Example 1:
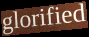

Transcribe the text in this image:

glorified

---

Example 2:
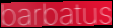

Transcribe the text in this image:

barbatus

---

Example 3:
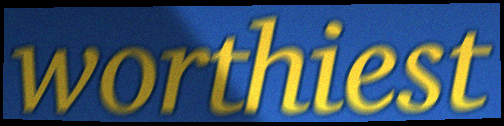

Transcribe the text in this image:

worthiest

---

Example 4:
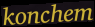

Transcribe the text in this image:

konchem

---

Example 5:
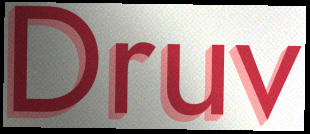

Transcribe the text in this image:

Druv